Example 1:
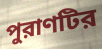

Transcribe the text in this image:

পুরাণটির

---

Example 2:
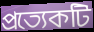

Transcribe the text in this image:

প্রত্যেকটি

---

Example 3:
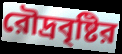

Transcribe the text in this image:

রৌদ্রবৃষ্টির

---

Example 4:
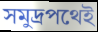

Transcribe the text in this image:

সমুদ্রপথেই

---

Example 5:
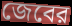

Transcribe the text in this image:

জেবের